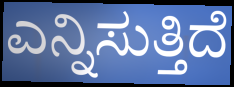
ಎನ್ನಿಸುತ್ತಿದೆ